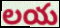
లయ